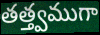
తత్త్వముగా